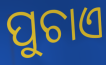
ପୁଚାଏ